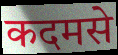
कदमसे